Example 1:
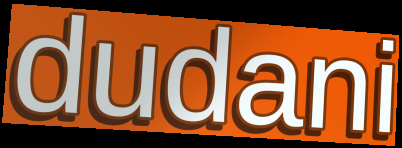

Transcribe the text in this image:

dudani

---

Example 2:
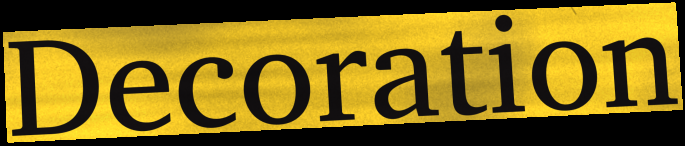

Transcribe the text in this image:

Decoration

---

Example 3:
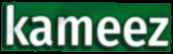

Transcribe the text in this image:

kameez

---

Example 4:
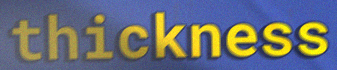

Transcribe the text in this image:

thickness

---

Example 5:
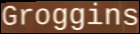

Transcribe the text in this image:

Groggins